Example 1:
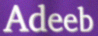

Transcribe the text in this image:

Adeeb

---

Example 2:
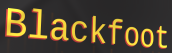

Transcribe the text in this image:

Blackfoot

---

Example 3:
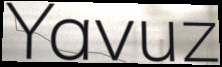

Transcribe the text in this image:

Yavuz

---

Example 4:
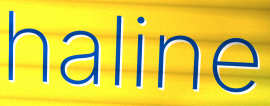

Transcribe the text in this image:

haline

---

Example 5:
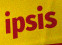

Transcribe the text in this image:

ipsis